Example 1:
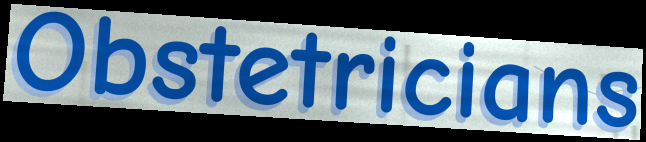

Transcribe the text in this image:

Obstetricians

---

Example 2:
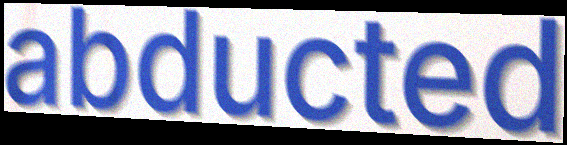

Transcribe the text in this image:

abducted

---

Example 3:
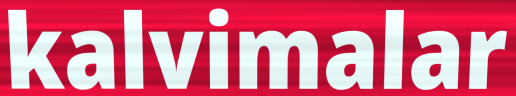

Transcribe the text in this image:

kalvimalar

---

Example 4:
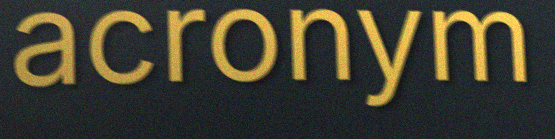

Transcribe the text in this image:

acronym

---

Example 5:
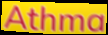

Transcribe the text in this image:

Athma